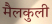
मैलकुली